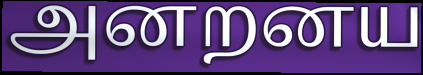
அனறனய